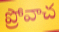
ప్రోవాచ